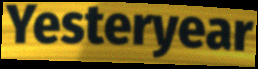
Yesteryear